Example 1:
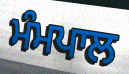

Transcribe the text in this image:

ਮੰਮਪਾਲ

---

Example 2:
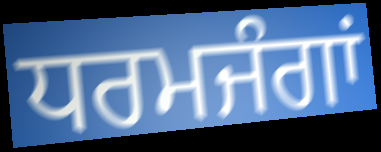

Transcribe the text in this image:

ਧਰਮਜੰਗਾਂ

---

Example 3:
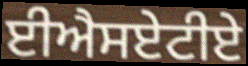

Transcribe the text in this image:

ਈਐਸਏਟੀਏ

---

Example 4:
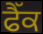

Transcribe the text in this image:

ਫੈੱਕ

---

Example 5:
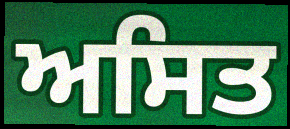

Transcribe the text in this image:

ਅਸਿਤ